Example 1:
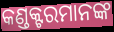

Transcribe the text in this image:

କଣ୍ଡକ୍ଟରମାନଙ୍କ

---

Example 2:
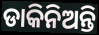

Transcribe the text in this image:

ଡାକିନିଅନ୍ତି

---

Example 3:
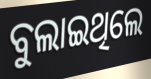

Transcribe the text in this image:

ବୁଲାଇଥିଲେ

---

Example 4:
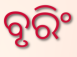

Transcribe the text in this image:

ବୃରିଂ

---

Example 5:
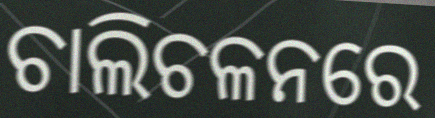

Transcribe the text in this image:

ଚାଲିଚଳନରେ